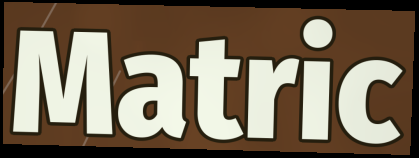
Matric